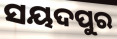
ସୟଦପୁର